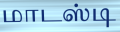
மாடஸ்டி